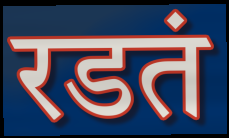
रडतं